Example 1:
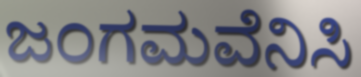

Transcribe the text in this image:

ಜಂಗಮವೆನಿಸಿ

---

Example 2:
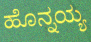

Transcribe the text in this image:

ಹೊನ್ನಯ್ಯ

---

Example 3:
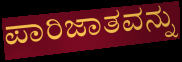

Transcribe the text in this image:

ಪಾರಿಜಾತವನ್ನು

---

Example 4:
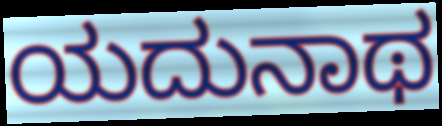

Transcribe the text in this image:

ಯದುನಾಥ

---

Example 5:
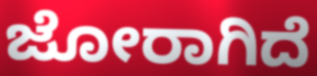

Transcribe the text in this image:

ಜೋರಾಗಿದೆ